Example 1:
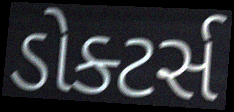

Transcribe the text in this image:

ડોક્ટર્સ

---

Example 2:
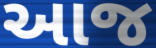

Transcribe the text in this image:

આજ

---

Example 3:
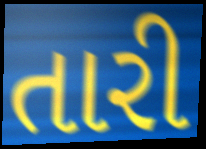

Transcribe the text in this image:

તારી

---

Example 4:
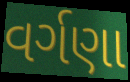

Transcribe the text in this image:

વર્ગણા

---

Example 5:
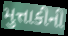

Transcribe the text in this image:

મુત્તાકીની